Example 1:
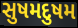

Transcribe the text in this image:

સુષમદુષમ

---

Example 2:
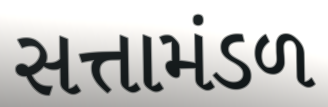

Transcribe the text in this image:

સત્તામંડળ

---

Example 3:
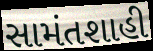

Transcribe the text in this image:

સામંતશાહી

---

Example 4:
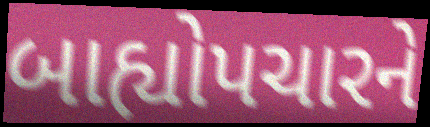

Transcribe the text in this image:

બાહ્યોપચારને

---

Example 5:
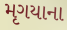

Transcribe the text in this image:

મૃગયાના